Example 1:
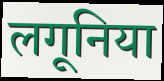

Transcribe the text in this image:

लगूनिया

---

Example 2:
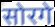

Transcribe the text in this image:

सोरगे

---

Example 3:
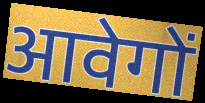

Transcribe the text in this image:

आवेगों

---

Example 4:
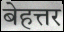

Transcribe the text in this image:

बेहत्तर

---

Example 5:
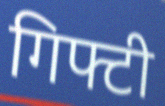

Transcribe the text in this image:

गिफ्टी